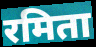
रमिता